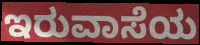
ಇರುವಾಸೆಯ